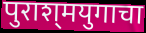
पुराश्मयुगाचा